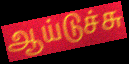
ஆய்டுச்சு